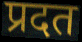
प्रदत